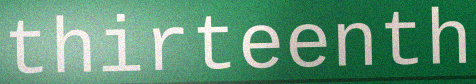
thirteenth